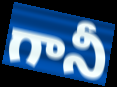
గానీ